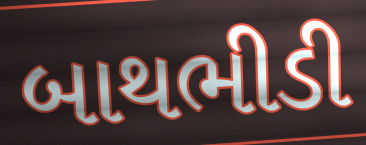
બાથભીડી